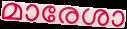
മാരേശാ